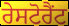
ਰੇਸਟੋਰੈਂਟ